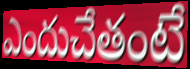
ఎందుచేతంటే